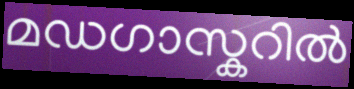
മഡഗാസ്കറിൽ